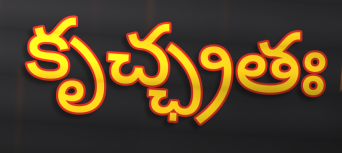
కృచ్ఛ్రతః